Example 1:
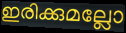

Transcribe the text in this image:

ഇരിക്കുമല്ലോ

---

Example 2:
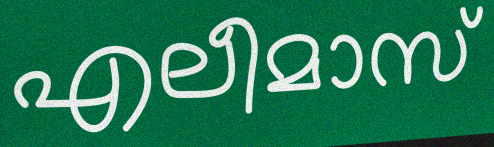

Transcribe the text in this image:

എലീമാസ്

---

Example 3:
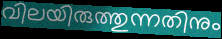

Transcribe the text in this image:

വിലയിരുത്തുന്നതിനും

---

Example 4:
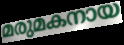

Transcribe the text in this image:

മരുമകനായ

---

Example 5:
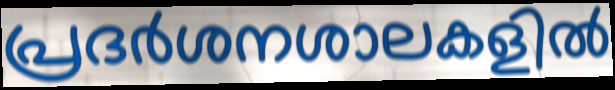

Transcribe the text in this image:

പ്രദർശനശാലകളിൽ